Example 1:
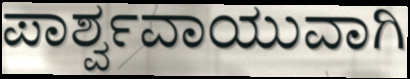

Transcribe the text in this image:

ಪಾರ್ಶ್ವವಾಯುವಾಗಿ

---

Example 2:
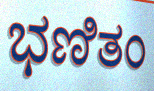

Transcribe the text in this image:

ಭಣಿತಂ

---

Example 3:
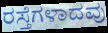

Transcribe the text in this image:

ರಸ್ತೆಗಳಾದವು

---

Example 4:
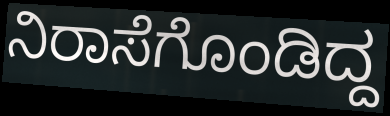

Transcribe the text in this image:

ನಿರಾಸೆಗೊಂಡಿದ್ದ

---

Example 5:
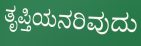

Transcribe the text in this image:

ತೃಪ್ತಿಯನರಿವುದು